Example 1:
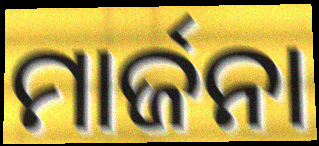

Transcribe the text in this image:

ମାର୍ଜନା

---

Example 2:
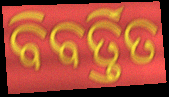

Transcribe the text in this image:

ବିବର୍ତ୍ତିତ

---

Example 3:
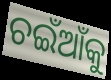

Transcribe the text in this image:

ଚଇଁଆଁକୁ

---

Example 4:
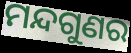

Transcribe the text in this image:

ମନ୍ଦଗୁଣର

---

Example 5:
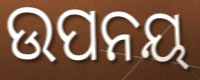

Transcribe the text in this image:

ଉପନୟ